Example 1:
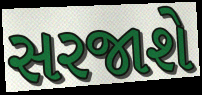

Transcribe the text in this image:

સરજાશે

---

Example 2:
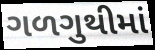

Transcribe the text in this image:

ગળગુથીમાં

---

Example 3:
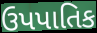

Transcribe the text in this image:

ઉપપાતિક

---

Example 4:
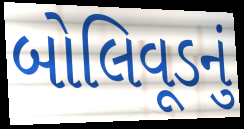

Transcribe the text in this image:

બોલિવૂડનું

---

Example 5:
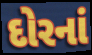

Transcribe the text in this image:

દોરનાં